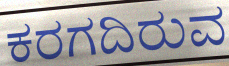
ಕರಗದಿರುವ